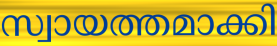
സ്വായത്തമാക്കി